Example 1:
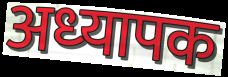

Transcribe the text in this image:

अध्‍यापक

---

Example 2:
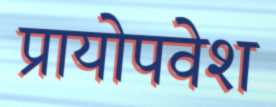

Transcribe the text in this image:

प्रायोपवेश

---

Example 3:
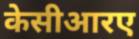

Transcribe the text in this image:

केसीआरए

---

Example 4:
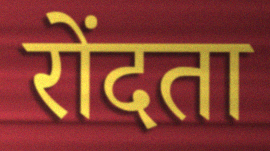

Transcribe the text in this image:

रोंदता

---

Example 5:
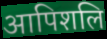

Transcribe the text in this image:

आपिशलि